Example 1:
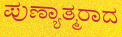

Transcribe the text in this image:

ಪುಣ್ಯಾತ್ಮರಾದ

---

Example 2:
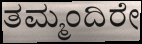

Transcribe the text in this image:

ತಮ್ಮಂದಿರೇ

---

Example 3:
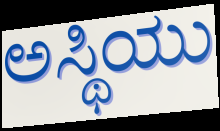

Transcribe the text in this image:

ಅಸ್ಥಿಯು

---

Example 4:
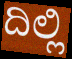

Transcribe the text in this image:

ದಿಲ್ಲಿ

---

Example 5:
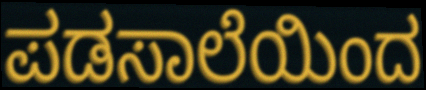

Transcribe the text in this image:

ಪಡಸಾಲೆಯಿಂದ